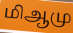
மிஆமு